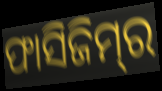
ଫାସିଜିମ୍‌ର